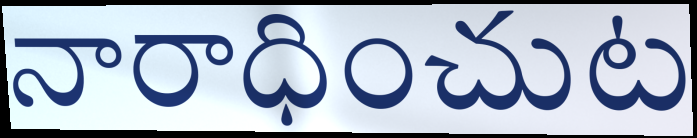
నారాధించుట